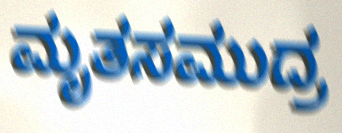
ಮೃತಸಮುದ್ರ